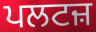
ਪਲਟਜ਼